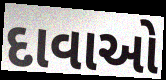
દાવાઓ